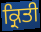
ਕ੍ਰਿਤੀ